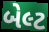
બેલ્ટ